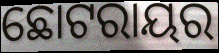
ଛୋଟରାୟର